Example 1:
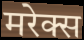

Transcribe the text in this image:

मरेक्स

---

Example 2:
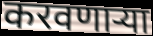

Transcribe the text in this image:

करवणाऱ्या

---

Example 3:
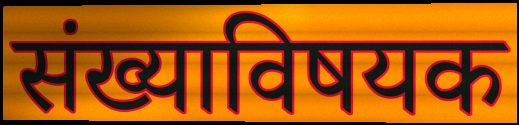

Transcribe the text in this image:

संख्याविषयक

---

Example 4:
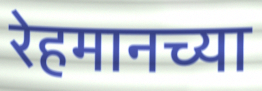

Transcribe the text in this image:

रेहमानच्या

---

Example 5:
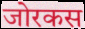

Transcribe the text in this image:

जोरकस